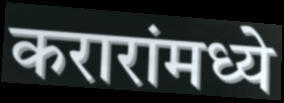
करारांमध्ये